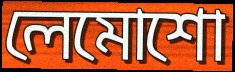
লেমোশো